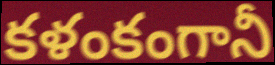
కళంకంగానీ